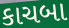
કાચબા